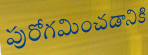
పురోగమించడానికి